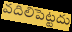
వదిలిపెట్టదు